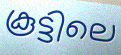
കൂട്ടിലെ